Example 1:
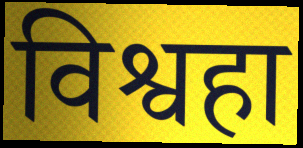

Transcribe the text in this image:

विश्वहा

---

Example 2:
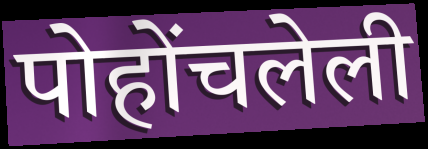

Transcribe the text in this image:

पोहोंचलेली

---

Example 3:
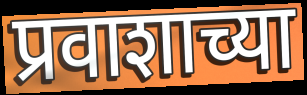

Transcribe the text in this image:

प्रवाशाच्या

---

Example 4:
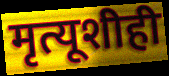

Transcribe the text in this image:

मृत्यूशीही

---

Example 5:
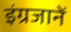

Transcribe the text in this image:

इंग्रजानें